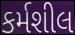
કર્મશીલ